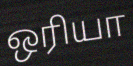
ஒரியா